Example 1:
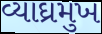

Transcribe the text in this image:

વ્યાઘ્રમુખ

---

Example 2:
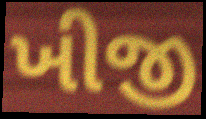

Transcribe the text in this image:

ખીજી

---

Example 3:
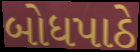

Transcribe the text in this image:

બોધપાઠે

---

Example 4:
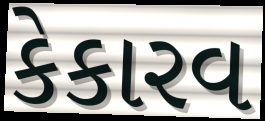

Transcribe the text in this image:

કેકારવ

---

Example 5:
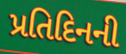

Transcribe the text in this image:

પ્રતિદિનની